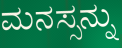
ಮನಸ್ಸನ್ನು